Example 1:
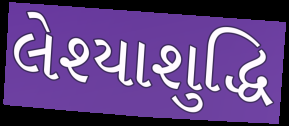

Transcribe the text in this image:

લેશ્યાશુદ્ધિ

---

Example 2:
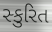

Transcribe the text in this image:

સ્કુરિત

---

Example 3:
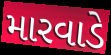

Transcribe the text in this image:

મારવાડે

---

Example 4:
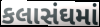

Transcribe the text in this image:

કલાસંઘમાં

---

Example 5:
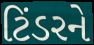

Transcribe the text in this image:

ટિંડરને